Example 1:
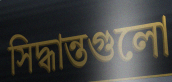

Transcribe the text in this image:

সিদ্ধান্তগুলো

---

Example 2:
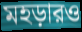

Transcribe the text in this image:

মহড়ারও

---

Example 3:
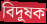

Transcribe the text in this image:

বিদূষক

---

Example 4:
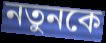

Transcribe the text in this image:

নতুনকে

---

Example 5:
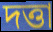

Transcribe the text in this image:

দত্তা